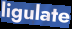
ligulate